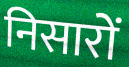
निसारों